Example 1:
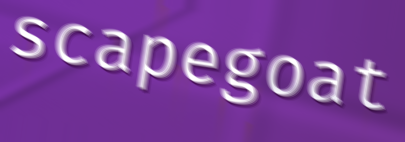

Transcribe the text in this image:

scapegoat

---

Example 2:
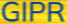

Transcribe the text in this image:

GIPR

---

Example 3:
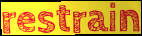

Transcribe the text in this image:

restrain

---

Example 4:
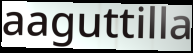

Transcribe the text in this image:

aaguttilla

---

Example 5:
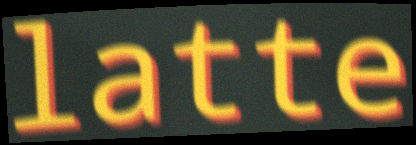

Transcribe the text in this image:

latte